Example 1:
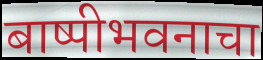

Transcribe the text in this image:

बाष्पीभवनाचा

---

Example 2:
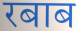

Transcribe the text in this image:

रबाब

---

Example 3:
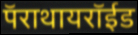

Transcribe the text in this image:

पॅराथायरॉईड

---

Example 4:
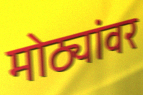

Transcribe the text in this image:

मोठ्यांवर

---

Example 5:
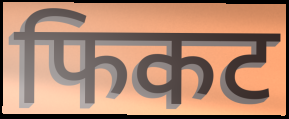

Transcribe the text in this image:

फिकट